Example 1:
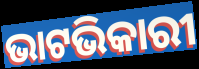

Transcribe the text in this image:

ଭାଟଭିକାରୀ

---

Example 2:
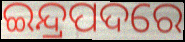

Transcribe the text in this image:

ଇନ୍ଦ୍ରପଦରେ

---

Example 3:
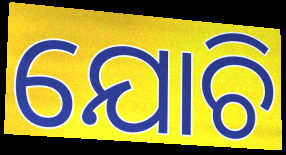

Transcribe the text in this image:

ଯୋଚି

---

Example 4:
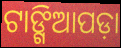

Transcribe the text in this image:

ଟାଙ୍ଗିଆପଡ଼ା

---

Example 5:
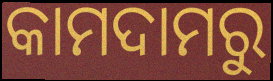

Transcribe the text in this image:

କାମଦାମରୁ